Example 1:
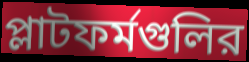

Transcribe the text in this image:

প্লাটফর্মগুলির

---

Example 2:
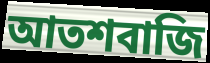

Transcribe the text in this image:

আতশবাজি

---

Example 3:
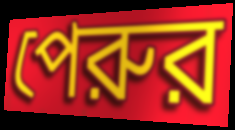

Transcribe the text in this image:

পেরুর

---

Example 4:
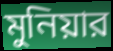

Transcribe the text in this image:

মুনিয়ার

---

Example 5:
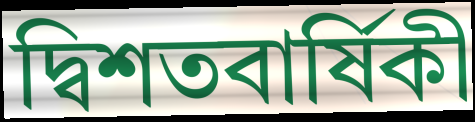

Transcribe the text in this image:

দ্বিশতবার্ষিকী